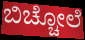
ಬಿಚ್ಚೋಲೆ